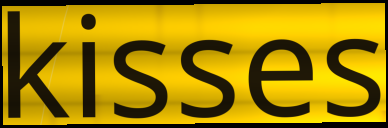
kisses